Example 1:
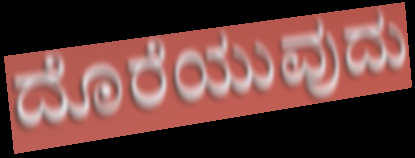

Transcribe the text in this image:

ದೊರೆಯುವುದು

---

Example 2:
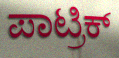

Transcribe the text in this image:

ಪಾಟ್ರಿಕ್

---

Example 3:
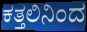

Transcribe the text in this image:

ಕತ್ತಲಿನಿಂದ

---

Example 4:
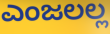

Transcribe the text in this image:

ಎಂಜಲಲ್ಲ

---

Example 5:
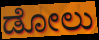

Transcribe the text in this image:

ಡೋಲು